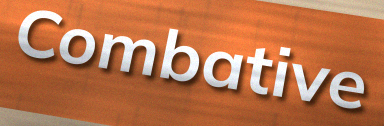
Combative